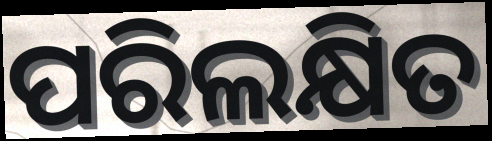
ପରିଲକ୍ଷିତ